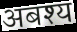
अबश्य